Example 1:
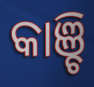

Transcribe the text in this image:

କାଞ୍ଚି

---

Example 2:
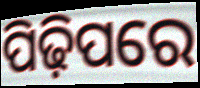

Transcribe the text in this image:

ପିଢ଼ିପରେ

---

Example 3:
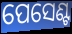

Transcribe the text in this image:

ପେସେଣ୍ଟ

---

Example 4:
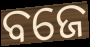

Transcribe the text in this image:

ବଜେ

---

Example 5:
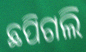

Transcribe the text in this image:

ଛପିଗଲି